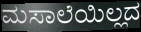
ಮಸಾಲೆಯಿಲ್ಲದ